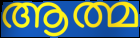
ആത്മ